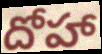
దోహా